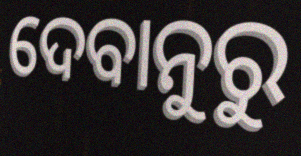
ଦେବାନୁରୁ